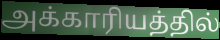
அக்காரியத்தில்